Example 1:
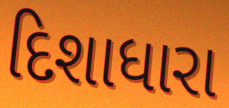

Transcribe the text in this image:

દિશાધારા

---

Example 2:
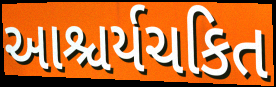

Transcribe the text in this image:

આશ્ચર્યચકિત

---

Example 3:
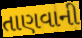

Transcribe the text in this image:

તાણવાની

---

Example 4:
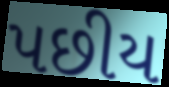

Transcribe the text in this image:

પછીય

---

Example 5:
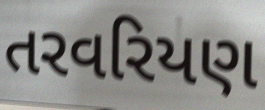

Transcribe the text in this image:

તરવરિયણ